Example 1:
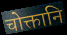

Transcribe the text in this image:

चोक्तानि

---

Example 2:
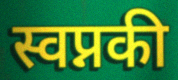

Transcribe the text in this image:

स्वप्नकी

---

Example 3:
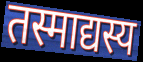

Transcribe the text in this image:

तस्माद्यस्य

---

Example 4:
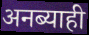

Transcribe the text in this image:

अनब्याही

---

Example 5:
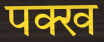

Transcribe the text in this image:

पक्ख